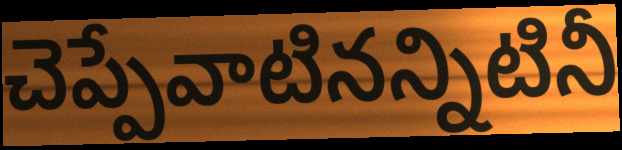
చెప్పేవాటినన్నిటినీ